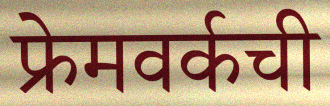
फ्रेमवर्कची